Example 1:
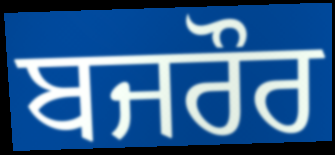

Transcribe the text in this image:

ਬਜਰੌਰ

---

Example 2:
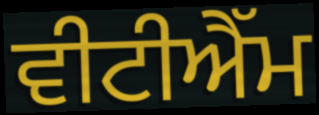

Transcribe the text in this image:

ਵੀਟੀਐੱਮ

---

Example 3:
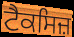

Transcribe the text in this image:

ਟੈਕਸਿਜ਼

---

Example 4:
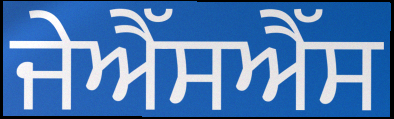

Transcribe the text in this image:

ਜੇਐੱਸਐੱਸ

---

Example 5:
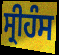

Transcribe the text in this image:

ਸ੍ਰੀਹੰਸ